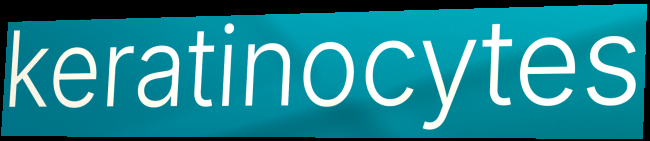
keratinocytes